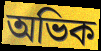
অভিক